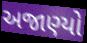
અજાણ્યો